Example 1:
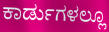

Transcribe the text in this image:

ಕಾರ್ಡುಗಳಲ್ಲೂ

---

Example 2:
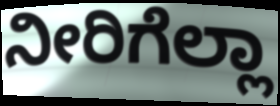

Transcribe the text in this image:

ನೀರಿಗೆಲ್ಲಾ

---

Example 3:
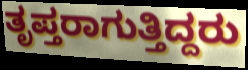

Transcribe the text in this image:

ತೃಪ್ತರಾಗುತ್ತಿದ್ದರು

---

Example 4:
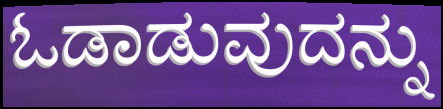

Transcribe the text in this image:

ಓಡಾಡುವುದನ್ನು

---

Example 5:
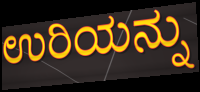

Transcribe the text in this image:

ಉರಿಯನ್ನು